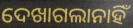
ଦେଖାଗଲାନାହିଁ